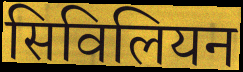
सिविलियन